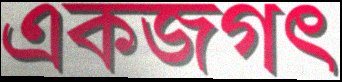
একজগৎ